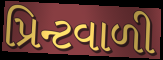
પ્રિન્ટવાળી